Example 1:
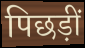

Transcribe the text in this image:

पिछड़ीं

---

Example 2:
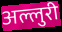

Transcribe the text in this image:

अल्लुरी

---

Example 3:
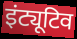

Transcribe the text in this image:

इंट्यूटिव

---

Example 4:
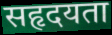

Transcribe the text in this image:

सहृदयता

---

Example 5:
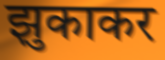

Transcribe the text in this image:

झुकाकर